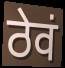
ठेवं